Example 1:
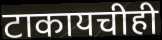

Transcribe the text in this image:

टाकायचीही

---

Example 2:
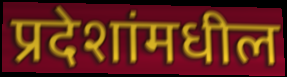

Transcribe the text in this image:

प्रदेशांमधील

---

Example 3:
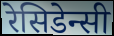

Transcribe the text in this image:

रेसिडेन्सी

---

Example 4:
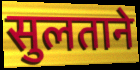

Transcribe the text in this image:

सुलताने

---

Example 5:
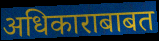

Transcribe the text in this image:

अधिकाराबाबत